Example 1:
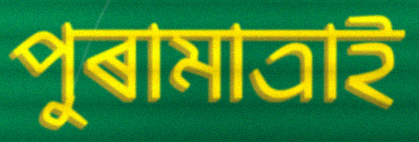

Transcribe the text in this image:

পুৰামাত্ৰাই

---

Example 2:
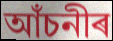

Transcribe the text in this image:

আঁচনীৰ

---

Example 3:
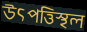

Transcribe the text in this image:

উৎপত্তিস্থল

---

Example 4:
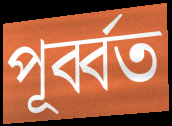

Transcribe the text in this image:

পূৰ্ব্বত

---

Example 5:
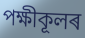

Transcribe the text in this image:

পক্ষীকূলৰ